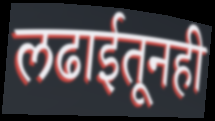
लढाईतूनही